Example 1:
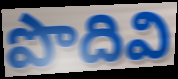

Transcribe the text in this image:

పొదివి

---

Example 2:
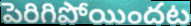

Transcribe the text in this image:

పెరిగిపోయిందట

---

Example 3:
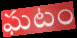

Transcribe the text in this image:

ఘటం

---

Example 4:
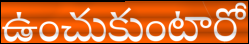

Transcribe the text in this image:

ఉంచుకుంటారో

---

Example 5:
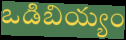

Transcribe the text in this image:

ఒడిబియ్యం